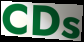
CDs